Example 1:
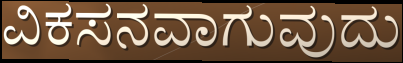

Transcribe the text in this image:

ವಿಕಸನವಾಗುವುದು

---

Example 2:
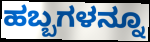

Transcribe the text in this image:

ಹಬ್ಬಗಳನ್ನೂ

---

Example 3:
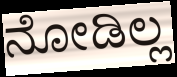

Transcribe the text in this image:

ನೋಡಿಲ್ಲ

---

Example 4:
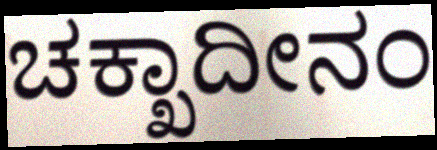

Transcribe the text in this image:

ಚಕ್ಖಾದೀನಂ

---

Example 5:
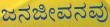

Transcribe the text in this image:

ಜನಜೀವನವು